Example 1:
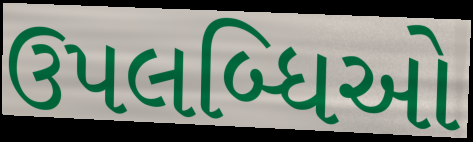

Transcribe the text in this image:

ઉપલબ્ધિઓ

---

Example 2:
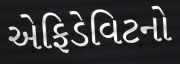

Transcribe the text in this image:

એફિડેવિટનો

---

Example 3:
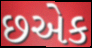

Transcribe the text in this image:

છએક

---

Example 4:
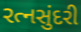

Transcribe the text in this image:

રત્નસુંદરી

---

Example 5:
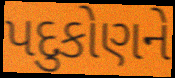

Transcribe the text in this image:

પદુકોણને